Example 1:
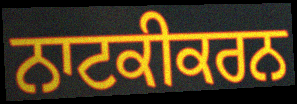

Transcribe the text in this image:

ਨਾਟਕੀਕਰਨ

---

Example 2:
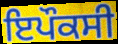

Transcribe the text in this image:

ਇਪੌਕਸੀ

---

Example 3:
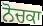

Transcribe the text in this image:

ਨੋਚਕਾ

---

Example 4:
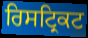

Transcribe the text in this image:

ਰਿਸਟ੍ਰਿਕਟ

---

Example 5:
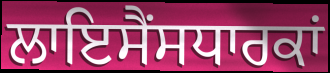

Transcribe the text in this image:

ਲਾਇਸੈਂਸਧਾਰਕਾਂ